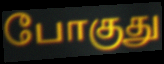
போகுது